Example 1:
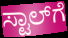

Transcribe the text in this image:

ಸ್ಟಾಲ್‌ಗೆ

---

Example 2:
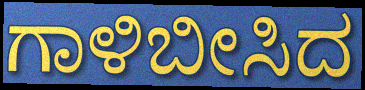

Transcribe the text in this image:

ಗಾಳಿಬೀಸಿದ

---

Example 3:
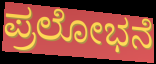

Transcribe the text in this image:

ಪ್ರಲೋಭನೆ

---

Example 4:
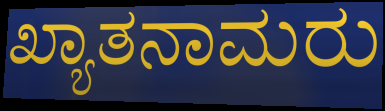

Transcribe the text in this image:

ಖ್ಯಾತನಾಮರು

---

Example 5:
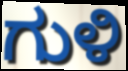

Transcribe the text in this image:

ಗುಳಿ